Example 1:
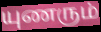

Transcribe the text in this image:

யுணரும்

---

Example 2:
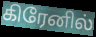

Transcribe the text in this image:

கிரேனில்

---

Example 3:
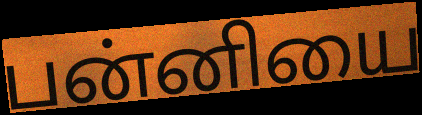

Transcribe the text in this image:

பன்னியை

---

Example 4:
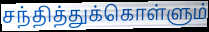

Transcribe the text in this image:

சந்தித்துக்கொள்ளும்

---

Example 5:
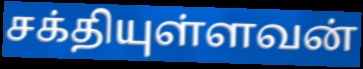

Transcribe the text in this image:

சக்தியுள்ளவன்